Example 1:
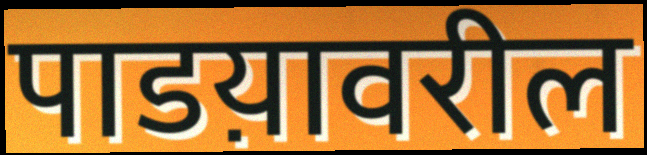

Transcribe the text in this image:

पाडय़ावरील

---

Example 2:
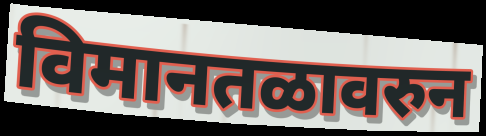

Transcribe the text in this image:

विमानतळावरुन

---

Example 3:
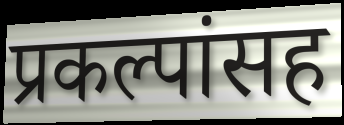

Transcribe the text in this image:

प्रकल्पांसह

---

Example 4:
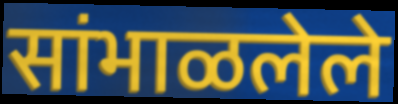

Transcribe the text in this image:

सांभाळलेले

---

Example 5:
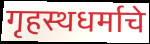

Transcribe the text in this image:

गृहस्थधर्माचे